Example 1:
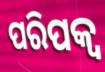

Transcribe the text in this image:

ପରିପକ୍ଵ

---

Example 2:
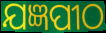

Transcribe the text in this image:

ଯଜ୍ଞପୀଠ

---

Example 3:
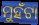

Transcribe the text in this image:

ମୁହଁଟା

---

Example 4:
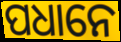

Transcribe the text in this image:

ପଧାନେ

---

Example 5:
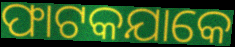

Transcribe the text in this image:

ଫାଟକଯାକେ